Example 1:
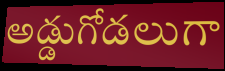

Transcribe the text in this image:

అడ్డుగోడలుగా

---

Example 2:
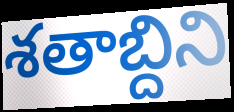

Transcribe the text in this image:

శతాబ్దిని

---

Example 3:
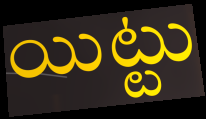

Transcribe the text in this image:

యిట్టు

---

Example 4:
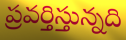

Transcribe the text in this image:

ప్రవర్తిస్తున్నది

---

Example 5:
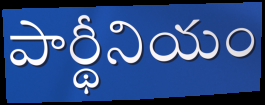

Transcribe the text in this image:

పార్థీనియం